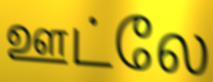
ஊட்லே